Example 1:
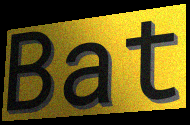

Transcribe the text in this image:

Bat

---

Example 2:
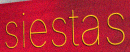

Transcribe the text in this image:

siestas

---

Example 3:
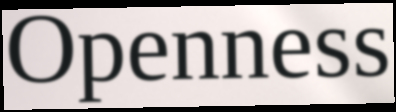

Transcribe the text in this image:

Openness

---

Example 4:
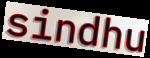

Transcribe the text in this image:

sindhu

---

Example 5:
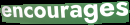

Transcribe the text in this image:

encourages